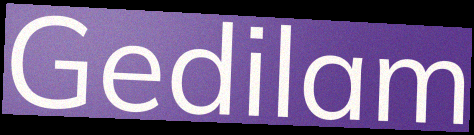
Gedilam